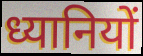
ध्यानियों